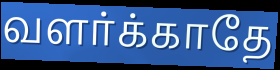
வளர்க்காதே